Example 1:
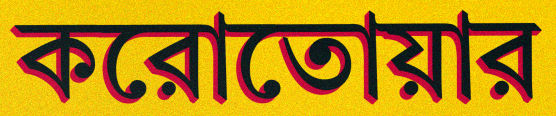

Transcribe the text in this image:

করোতোয়ার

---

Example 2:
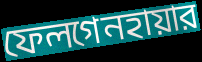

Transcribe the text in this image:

ফেলগেনহায়ার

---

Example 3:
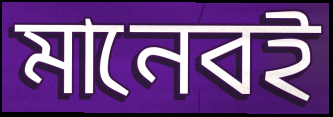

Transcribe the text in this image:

মানেবই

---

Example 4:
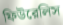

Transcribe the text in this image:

ফিউরেলিস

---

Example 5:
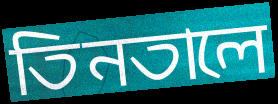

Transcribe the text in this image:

তিনতালে